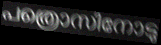
പത്രൊസിനോടു